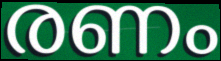
രണം